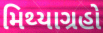
મિથ્યાગ્રહો